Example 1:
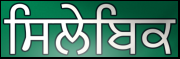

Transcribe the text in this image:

ਸਿਲੇਬਿਕ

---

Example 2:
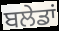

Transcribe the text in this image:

ਬਲੇਡਾਂ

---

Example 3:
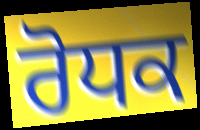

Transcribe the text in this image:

ਰੋਧਕ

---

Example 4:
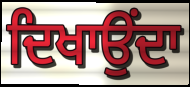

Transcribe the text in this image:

ਦਿਖਾਉਂਦਾ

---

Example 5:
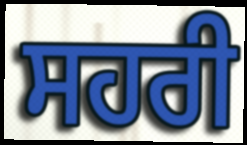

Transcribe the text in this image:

ਸਹਰੀ